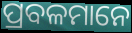
ପ୍ରବଳମାନେ